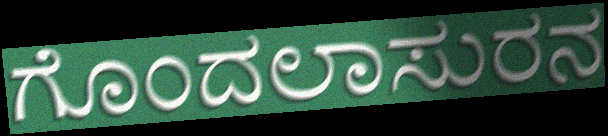
ಗೊಂದಲಾಸುರನ